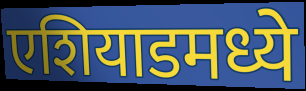
एशियाडमध्ये